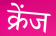
क्रेंज